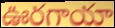
ఊరగాయా